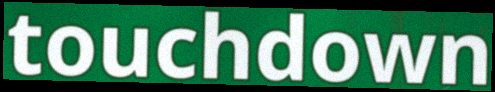
touchdown